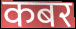
कबर